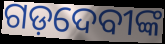
ଗଡ଼ଦେବୀଙ୍କ